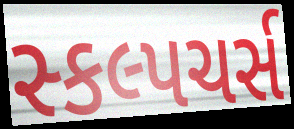
સ્કલ્પચર્સ